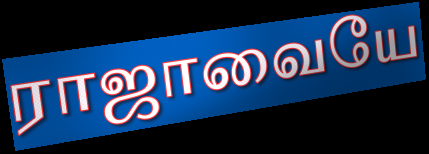
ராஜாவையே